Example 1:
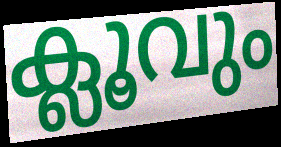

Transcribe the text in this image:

ക്ലൂവും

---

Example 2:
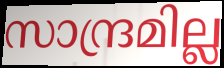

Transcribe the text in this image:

സാന്ദ്രമില്ല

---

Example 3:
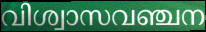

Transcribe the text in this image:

വിശ്വാസവഞ്ചന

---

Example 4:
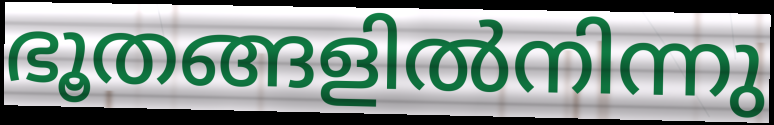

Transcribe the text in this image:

ഭൂതങ്ങളിൽനിന്നു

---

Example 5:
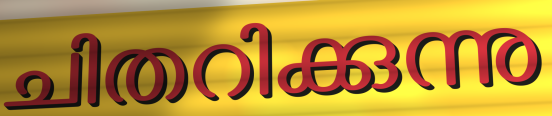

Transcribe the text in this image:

ചിതറിക്കുന്നു